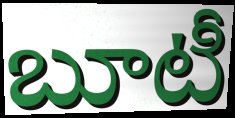
బూటీ